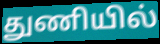
துணியில்